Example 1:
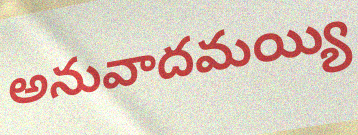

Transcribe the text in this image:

అనువాదమయ్యి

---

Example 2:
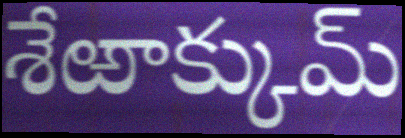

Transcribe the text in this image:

శేఱాక్కుమ్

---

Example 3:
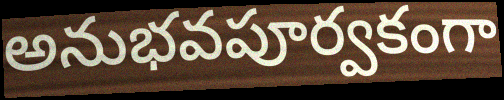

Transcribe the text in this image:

అనుభవపూర్వకంగా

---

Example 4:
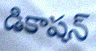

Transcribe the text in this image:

డికాషన్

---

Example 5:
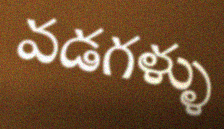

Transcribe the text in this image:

వడగళ్ళు